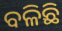
ବଳିଛି